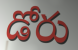
డోరు